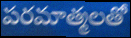
పరమాత్మలతో